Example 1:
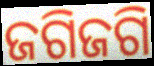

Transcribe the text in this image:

ଜଗିଜଗି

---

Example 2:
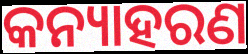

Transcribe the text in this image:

କନ୍ୟାହରଣ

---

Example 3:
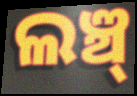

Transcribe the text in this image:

ଲଞ୍ଚ୍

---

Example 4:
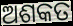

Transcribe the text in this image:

ଅଶକତ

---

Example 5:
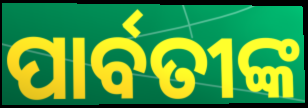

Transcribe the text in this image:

ପାର୍ବତୀଙ୍କ